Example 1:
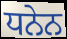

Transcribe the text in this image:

ਧਨੇਨ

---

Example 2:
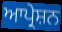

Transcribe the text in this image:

ਆਪ੍ਰੇਸ਼ਨ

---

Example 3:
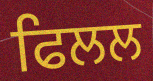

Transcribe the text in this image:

ਫਿਲਲ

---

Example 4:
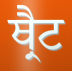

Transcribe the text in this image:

ਥ੍ਰੈਟ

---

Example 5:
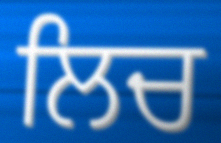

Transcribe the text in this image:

ਲਿਚ